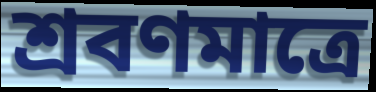
শ্রবণমাত্রে